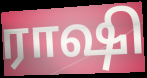
ராஷி